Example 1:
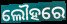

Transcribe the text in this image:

ଲୌହରେ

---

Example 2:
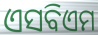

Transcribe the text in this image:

ଏସବିଏମ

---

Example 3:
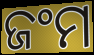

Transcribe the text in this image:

ଜଂମ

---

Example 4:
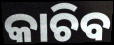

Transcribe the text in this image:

କାଚିବ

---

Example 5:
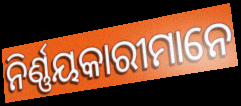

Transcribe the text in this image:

ନିର୍ଣ୍ଣୟକାରୀମାନେ